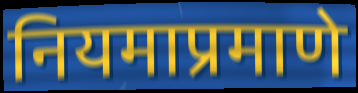
नियमाप्रमाणे